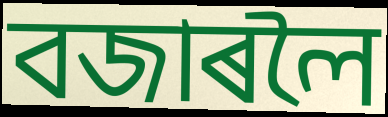
বজাৰলৈ